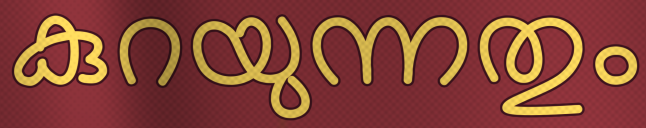
കുറയുന്നതും